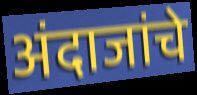
अंदाजांचे